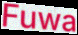
Fuwa